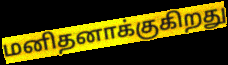
மனிதனாக்குகிறது